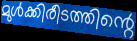
മുൾക്കിരീടത്തിന്റെ